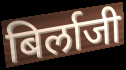
बिर्लाजी